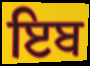
ਇਬ